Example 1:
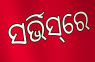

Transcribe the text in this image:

ସର୍ଭିସ୍‌ରେ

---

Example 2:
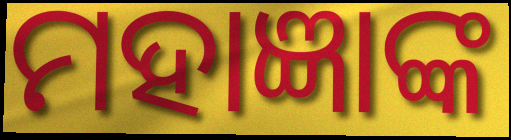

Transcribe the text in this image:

ମହାଜ୍ଞାଙ୍କ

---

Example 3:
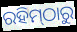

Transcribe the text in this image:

ରହିମ୍‌ଠାରୁ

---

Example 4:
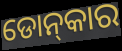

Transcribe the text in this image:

ଡୋନ୍‍କାର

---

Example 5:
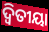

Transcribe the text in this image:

ଦ୍ବିତୀୟା